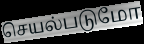
செயல்படுமோ